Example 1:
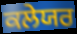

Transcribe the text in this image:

ਕਲੇਯਰ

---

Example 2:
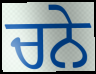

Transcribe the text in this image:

ਚਨੇ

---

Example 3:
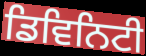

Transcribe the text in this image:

ਡਿਵਿਨਿਟੀ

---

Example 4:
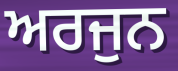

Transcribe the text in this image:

ਅਰਜੁਨ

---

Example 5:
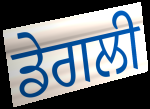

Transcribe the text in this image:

ਡੇਗਲੀ